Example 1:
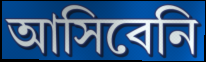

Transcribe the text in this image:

আসিবেনি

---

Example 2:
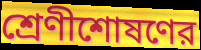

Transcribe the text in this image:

শ্রেণীশোষণের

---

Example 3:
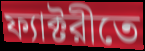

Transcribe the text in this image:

ফ্যাক্টরীতে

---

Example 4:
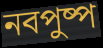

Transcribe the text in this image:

নবপুষ্প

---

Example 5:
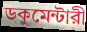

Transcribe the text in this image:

ডকুমেন্টারী